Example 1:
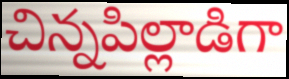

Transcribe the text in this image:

చిన్నపిల్లాడిగా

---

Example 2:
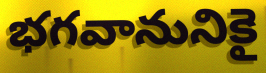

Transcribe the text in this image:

భగవానునికై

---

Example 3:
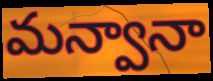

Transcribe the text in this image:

మన్వానా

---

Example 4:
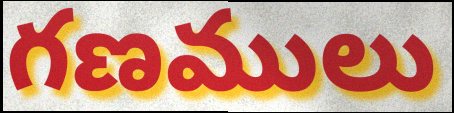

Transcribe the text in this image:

గణములు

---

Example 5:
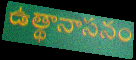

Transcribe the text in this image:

ఉత్థానాసనం